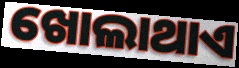
ଖୋଲାଥାଏ